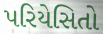
પરિયેસિતો